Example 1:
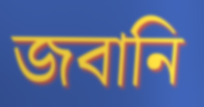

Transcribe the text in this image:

জবানি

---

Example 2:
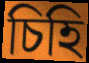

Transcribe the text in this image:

চিহি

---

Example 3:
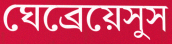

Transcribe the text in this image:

ঘেব্রেয়েসুস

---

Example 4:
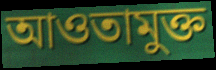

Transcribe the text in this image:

আওতামুক্ত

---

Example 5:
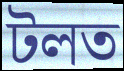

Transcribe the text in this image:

টলত